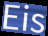
Eis